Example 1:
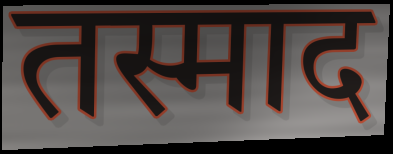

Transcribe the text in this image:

तस्माद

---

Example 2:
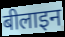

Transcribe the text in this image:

बीलाइन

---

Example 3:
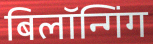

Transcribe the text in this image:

बिलॉन्गिंग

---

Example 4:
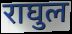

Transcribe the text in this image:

राघुल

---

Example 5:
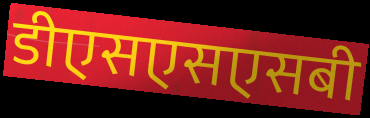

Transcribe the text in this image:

डीएसएसएसबी